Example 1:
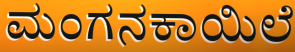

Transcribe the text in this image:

ಮಂಗನಕಾಯಿಲೆ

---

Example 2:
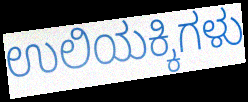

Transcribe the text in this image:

ಉಲಿಯಕ್ಕಿಗಳು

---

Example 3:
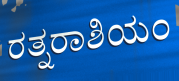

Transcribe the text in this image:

ರತ್ನರಾಶಿಯಂ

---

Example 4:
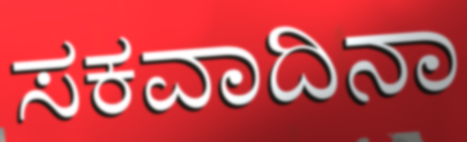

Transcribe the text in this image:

ಸಕವಾದಿನಾ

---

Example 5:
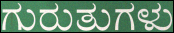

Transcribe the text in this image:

ಗುರುತುಗಳು